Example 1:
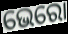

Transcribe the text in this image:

ଭେରୋ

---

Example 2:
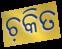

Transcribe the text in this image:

ଚ଼କିତ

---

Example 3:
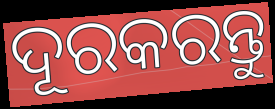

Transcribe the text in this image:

ଦୂରକରନ୍ତୁ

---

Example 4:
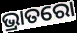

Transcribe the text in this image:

ଭ୍ରାତରୋ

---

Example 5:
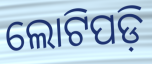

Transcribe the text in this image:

ଲୋଟିପଡ଼ି